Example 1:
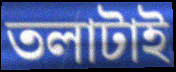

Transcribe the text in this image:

তলাটাই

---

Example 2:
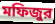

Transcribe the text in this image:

মফিজুর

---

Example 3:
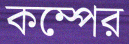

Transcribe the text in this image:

কম্পের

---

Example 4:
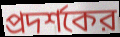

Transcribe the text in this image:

প্রদর্শকের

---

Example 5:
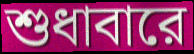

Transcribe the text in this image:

শুধাবারে